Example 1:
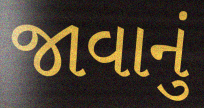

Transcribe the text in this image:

જાવાનું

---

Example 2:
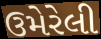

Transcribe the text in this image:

ઉમેરેલી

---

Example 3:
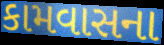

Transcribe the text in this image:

કામવાસના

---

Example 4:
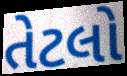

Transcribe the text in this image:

તેટલો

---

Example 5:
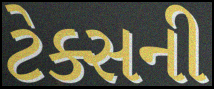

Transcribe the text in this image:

ટેક્સની